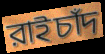
রাইচাঁদ